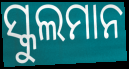
ସ୍କୁଲମାନ